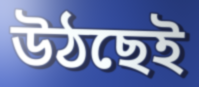
উঠছেই